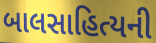
બાલસાહિત્યની